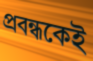
প্রবন্ধকেই